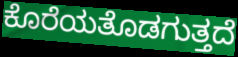
ಕೊರೆಯತೊಡಗುತ್ತದೆ